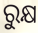
ରୁକ୍ଷ